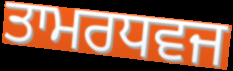
ਤਾਮਰਧਵਜ